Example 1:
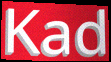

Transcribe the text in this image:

Kad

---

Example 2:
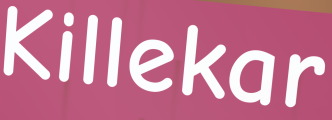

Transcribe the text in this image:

Killekar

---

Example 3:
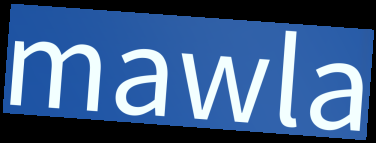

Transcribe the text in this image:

mawla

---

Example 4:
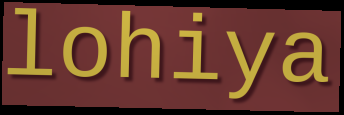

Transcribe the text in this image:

lohiya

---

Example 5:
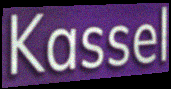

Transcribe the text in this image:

Kassel